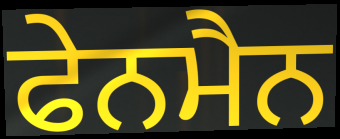
ਫੇਨਮੈਨ